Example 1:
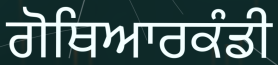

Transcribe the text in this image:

ਗੋਥਿਆਰਕੰਡੀ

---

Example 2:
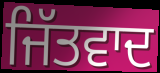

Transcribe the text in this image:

ਜਿੱਤਵਾਦ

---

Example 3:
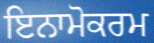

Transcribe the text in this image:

ਇਨਾਮੋਕਰਮ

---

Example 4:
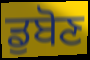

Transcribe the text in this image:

ਡੁਬੋਣ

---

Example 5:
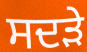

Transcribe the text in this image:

ਸਦੜੇ